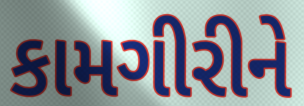
કામગીરીને